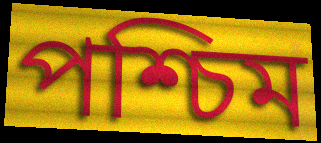
পশ্চিম